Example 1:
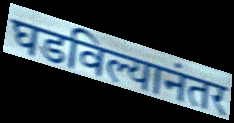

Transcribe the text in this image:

घडविल्यानंतर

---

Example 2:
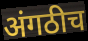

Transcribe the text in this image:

अंगठीच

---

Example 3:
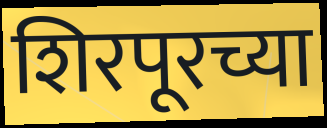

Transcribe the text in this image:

शिरपूरच्या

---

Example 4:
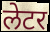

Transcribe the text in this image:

लेटर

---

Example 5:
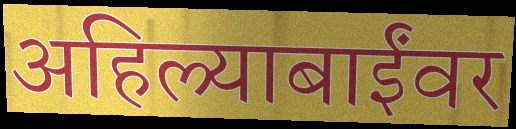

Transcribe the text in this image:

अहिल्याबाईंवर